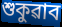
শুকুৱাব